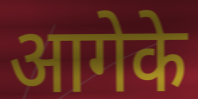
आगेके